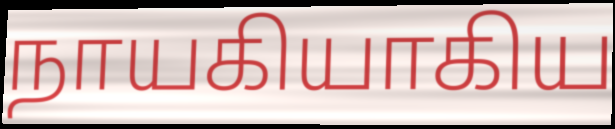
நாயகியாகிய